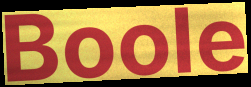
Boole